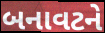
બનાવટને